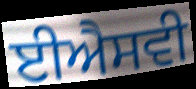
ਈਐਸਵੀ